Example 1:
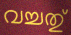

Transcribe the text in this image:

വച്ചതു്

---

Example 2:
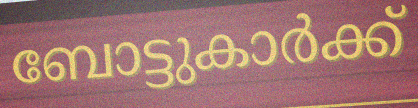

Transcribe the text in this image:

ബോട്ടുകാർക്ക്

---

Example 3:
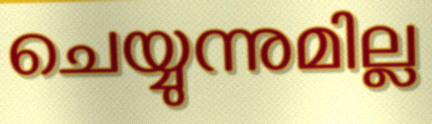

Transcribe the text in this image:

ചെയ്യുന്നുമില്ല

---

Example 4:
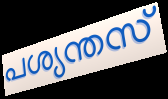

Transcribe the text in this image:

പശ്യന്തസ്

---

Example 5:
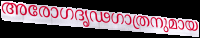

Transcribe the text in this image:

അരോഗദൃഢഗാത്രനുമായ